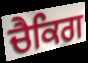
ਚੈਕਿਗ